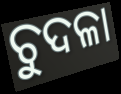
ଚୁଦଳା